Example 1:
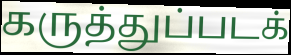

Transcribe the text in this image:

கருத்துப்படக்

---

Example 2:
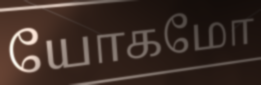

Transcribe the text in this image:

யோகமோ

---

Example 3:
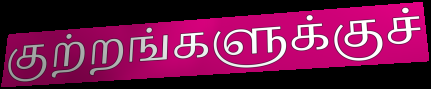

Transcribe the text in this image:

குற்றங்களுக்குச்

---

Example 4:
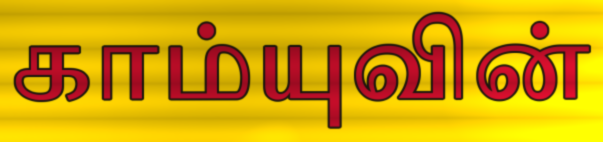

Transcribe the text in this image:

காம்யுவின்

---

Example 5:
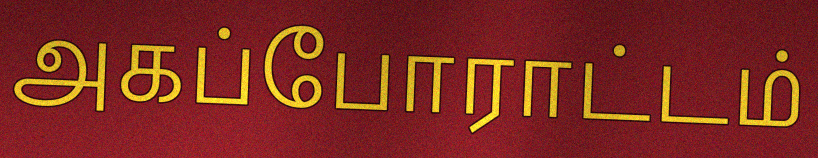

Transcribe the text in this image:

அகப்போராட்டம்